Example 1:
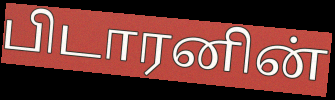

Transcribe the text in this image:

பிடாரனின்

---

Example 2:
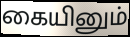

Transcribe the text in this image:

கையினும்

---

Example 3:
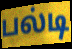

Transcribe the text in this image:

பல்டி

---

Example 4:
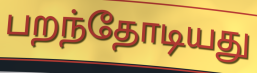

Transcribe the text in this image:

பறந்தோடியது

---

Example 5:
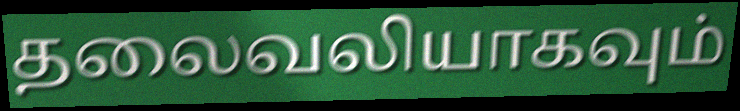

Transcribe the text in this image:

தலைவலியாகவும்